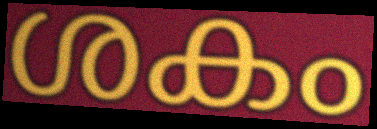
ശകം